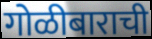
गोळीबाराची